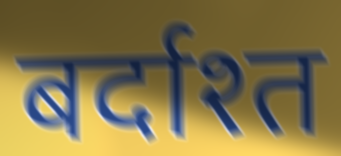
बर्दाश्त